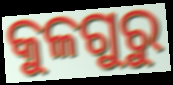
କୁଳଗୁରୁ